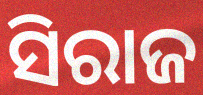
ସିରାଜ